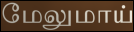
மேலுமாய்